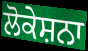
ਲੋਕੇਸ਼ਨਾ